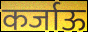
कर्जाऊ